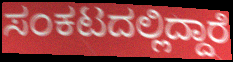
ಸಂಕಟದಲ್ಲಿದ್ದಾರೆ